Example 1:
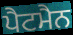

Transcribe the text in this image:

ਪੈਟਮੈਨ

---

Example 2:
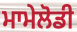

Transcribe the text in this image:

ਮਾਮੇਲੋਡੀ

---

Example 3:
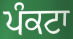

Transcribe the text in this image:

ਪੰਕਟਾ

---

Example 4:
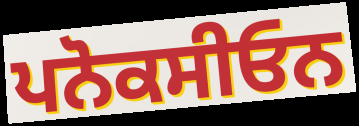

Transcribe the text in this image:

ਪਨੋਕਸੀਓਨ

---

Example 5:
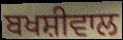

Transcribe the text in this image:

ਬਖਸ਼ੀਵਾਲ